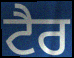
ਟੈਰ